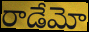
రాడేమో